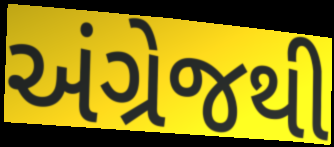
અંગ્રેજથી